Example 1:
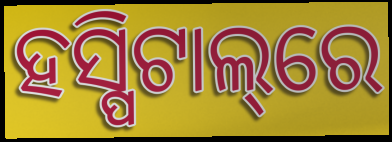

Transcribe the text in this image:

ହସ୍ପିଟାଲ୍‌ରେ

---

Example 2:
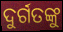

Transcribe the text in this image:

ଦୁର୍ଗତଙ୍କୁ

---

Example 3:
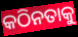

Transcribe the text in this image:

କଠିନତାକୁ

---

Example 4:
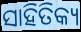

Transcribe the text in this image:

ସାହିତିକ୍ୟ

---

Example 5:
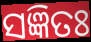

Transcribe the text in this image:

ସଜ୍ଞିତଃ